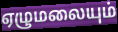
ஏழுமலையும்